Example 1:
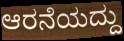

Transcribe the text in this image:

ಆರನೆಯದ್ದು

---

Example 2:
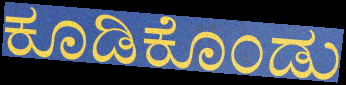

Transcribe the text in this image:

ಕೂಡಿಕೊಂಡು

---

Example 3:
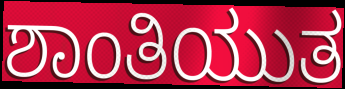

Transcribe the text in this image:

ಶಾಂತಿಯುತ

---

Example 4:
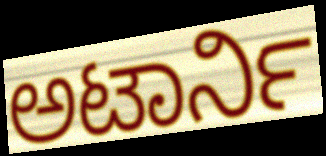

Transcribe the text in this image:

ಅಟಾರ್ನಿ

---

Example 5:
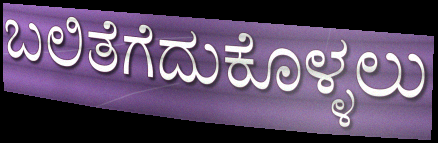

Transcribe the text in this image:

ಬಲಿತೆಗೆದುಕೊಳ್ಳಲು